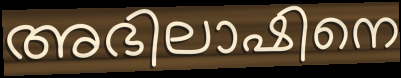
അഭിലാഷിനെ